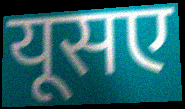
यूसए